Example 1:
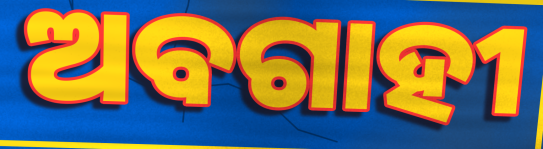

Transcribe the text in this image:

ଅବଗାହୀ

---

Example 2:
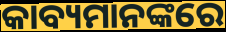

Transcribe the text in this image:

କାବ୍ୟମାନଙ୍କରେ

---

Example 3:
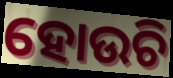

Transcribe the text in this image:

ହୋଉଚି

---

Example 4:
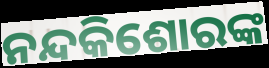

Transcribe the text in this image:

ନନ୍ଦକିଶୋରଙ୍କ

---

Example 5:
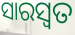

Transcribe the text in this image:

ସାରସ୍ବତ